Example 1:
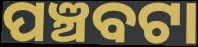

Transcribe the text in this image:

ପଞ୍ଚବଟା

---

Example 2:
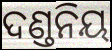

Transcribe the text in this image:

ଦଣ୍ଡନିୟ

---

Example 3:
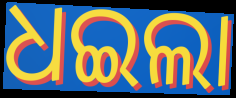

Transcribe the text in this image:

ଧଇଲା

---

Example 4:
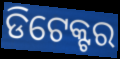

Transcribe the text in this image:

ଡିଟେକ୍ଟର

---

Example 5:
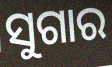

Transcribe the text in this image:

ସୁଗାର